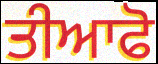
ਤੀਆਫੋ